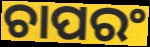
ଚାପରଂ